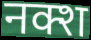
नक्श